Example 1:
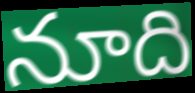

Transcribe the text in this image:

నూది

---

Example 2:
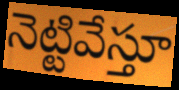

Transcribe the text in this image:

నెట్టివేస్తూ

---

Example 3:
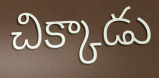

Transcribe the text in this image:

చిక్కాడు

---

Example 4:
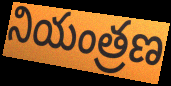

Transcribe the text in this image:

నియంత్రణ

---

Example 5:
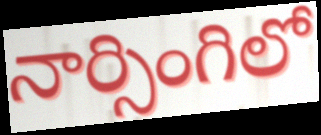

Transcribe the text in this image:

నార్సింగిలో